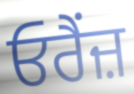
ਓਰੈਂਜ਼